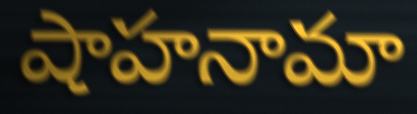
షాహనామా